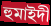
হুমাইদী